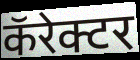
कॅरेक्टर